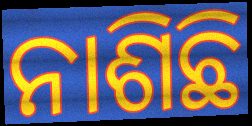
ନାଶିଛି